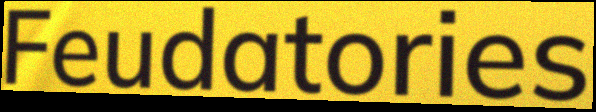
Feudatories